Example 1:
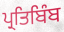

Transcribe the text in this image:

ਪ੍ਰਤਿਬਿੰਬ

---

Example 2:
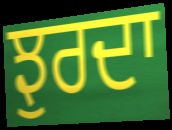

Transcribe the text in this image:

ਝੁਰਦਾ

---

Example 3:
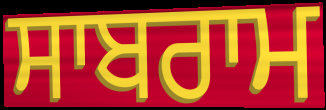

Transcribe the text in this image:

ਸਾਬਰਾਮ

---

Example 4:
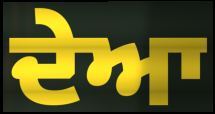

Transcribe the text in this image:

ਦੇਆ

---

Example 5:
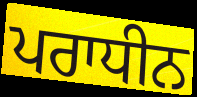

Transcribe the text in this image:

ਪਰਾਧੀਨ